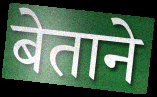
बेताने